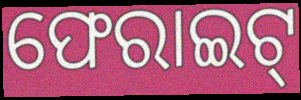
ଫେରାଇଟ୍